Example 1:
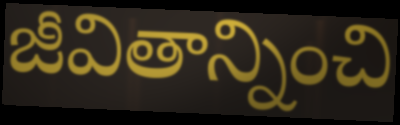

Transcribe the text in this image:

జీవితాన్నించి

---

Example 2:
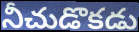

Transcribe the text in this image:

నీచుడొకడు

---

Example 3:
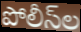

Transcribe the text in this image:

పోలీస్‌ల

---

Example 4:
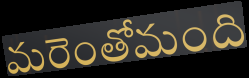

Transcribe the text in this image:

మరెంతోమంది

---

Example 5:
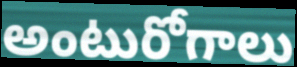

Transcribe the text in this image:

అంటురోగాలు